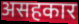
असहकार